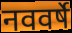
नववर्षे